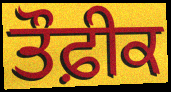
ਤੌਫ਼ੀਕ